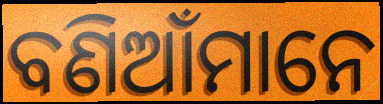
ବଣିଆଁମାନେ